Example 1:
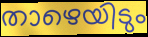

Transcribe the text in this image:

താഴെയിടും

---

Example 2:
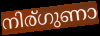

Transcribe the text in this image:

നിര്ഗുണാ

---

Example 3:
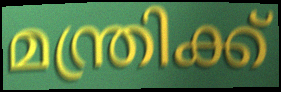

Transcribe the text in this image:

മന്ത്രിക്ക്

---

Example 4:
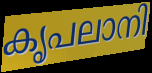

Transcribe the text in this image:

കൃപലാനി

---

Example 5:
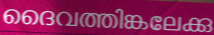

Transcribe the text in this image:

ദൈവത്തിങ്കലേക്കു